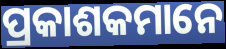
ପ୍ରକାଶକମାନେ